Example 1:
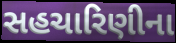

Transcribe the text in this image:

સહચારિણીના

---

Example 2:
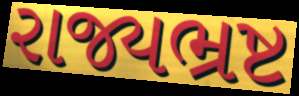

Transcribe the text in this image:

રાજ્યભ્રષ્ટ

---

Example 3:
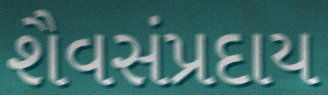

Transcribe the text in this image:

શૈવસંપ્રદાય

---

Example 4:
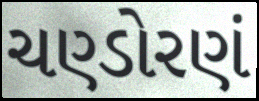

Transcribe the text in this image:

ચણ્ડોરણં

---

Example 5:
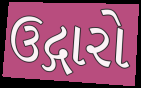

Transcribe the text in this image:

ઉદ્ગારો